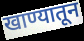
खाण्यातून